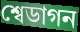
শ্বেডাগন